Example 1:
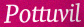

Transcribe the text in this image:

Pottuvil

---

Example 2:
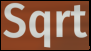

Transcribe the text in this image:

Sqrt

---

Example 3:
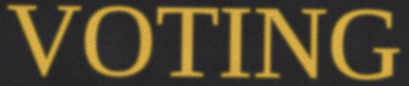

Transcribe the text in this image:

VOTING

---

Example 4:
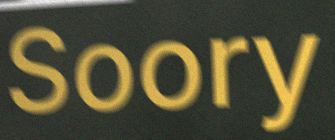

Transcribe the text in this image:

Soory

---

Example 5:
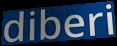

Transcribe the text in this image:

diberi